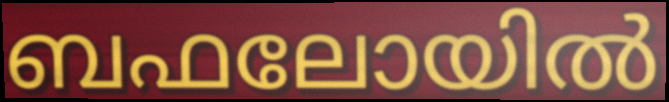
ബഫലോയിൽ